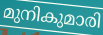
മുനികുമാരി